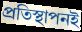
প্রতিস্থাপনই